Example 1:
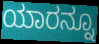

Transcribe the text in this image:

ಯಾರನ್ನೂ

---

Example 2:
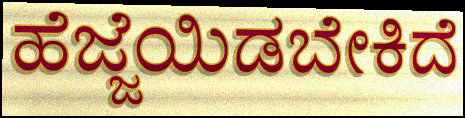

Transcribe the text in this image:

ಹೆಜ್ಜೆಯಿಡಬೇಕಿದೆ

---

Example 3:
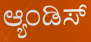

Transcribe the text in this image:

ಆ್ಯಂಡಿಸ್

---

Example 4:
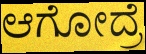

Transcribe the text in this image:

ಆಗೋದ್ರೆ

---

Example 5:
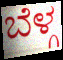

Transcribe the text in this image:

ಬೆಳ್ಗ